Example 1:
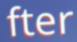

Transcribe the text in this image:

fter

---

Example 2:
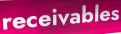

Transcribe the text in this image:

receivables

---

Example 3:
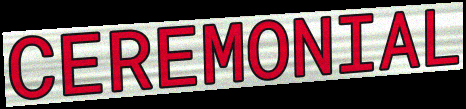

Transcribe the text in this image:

CEREMONIAL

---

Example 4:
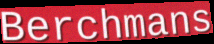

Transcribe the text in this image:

Berchmans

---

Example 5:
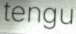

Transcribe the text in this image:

tengu